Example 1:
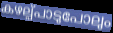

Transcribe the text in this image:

കഴല്പ്പാടുപോലും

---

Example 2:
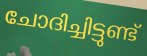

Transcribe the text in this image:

ചോദിച്ചിട്ടുണ്ട്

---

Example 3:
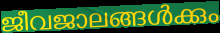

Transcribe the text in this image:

ജീവജാലങ്ങൾക്കും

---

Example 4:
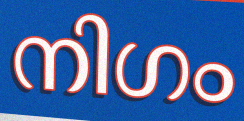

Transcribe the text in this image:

നിഗം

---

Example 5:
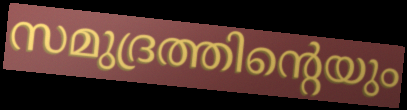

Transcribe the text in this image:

സമുദ്രത്തിന്റെയും